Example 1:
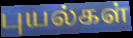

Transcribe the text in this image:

புயல்கள்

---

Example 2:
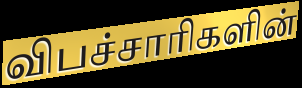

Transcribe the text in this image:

விபச்சாரிகளின்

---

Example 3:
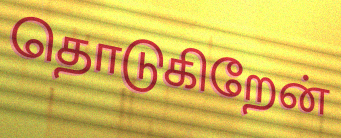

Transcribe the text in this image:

தொடுகிறேன்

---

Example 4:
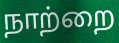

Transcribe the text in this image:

நாற்றை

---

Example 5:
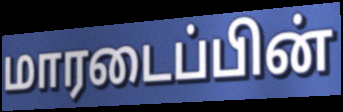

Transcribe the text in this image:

மாரடைப்பின்